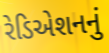
રેડિએશનનું